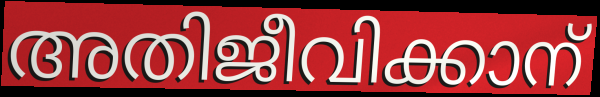
അതിജീവിക്കാന്